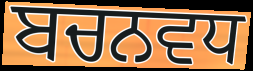
ਬਚਨਵਧ